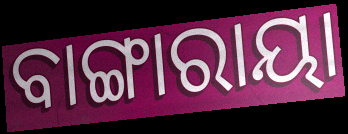
ବାଙ୍ଗାରାୟା